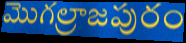
మొగల్రాజపురం